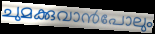
ചുമക്കുവാൻപോലും